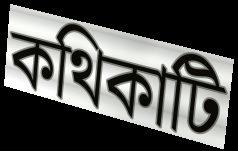
কথিকাটি